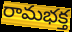
రామభక్త